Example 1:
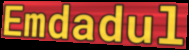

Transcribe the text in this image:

Emdadul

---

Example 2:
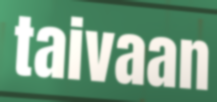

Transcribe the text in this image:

taivaan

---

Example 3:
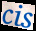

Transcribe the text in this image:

cis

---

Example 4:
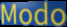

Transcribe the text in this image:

Modo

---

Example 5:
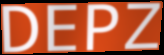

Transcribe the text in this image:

DEPZ